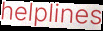
helplines